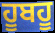
ਹੂਬਹੂ